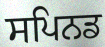
ਸਪਿਨਡ